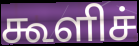
கூளிச்